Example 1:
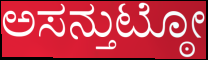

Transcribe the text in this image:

ಅಸನ್ತುಟ್ಠೋ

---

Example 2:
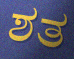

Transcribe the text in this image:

ಶತ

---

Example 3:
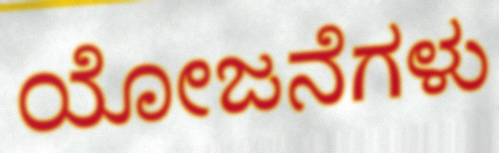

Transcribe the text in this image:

ಯೋಜನೆಗಳು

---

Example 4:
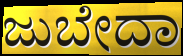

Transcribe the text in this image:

ಜುಬೇದಾ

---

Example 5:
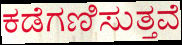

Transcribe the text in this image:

ಕಡೆಗಣಿಸುತ್ತವೆ